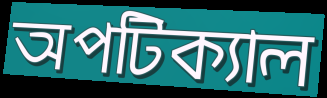
অপটিক্যাল